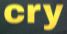
cry